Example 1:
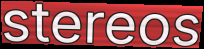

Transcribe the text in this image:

stereos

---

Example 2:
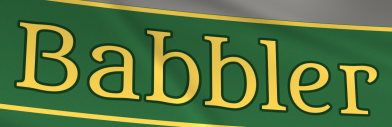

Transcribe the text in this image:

Babbler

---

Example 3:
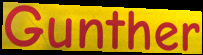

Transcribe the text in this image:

Gunther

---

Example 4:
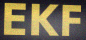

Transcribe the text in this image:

EKF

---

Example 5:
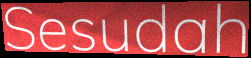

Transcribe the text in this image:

Sesudah